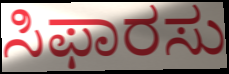
ಸಿಫಾರಸು